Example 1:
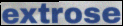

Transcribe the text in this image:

extrose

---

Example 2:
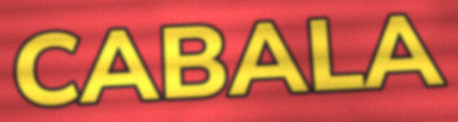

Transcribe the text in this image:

CABALA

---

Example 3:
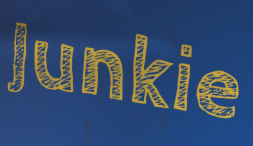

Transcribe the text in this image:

Junkie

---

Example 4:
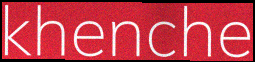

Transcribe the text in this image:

khenche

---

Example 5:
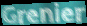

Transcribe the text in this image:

Grenier